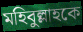
মহিবুল্লাহকে